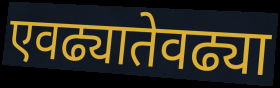
एवढ्यातेवढ्या